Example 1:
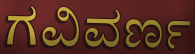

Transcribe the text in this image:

ಗವಿವರ್ಣ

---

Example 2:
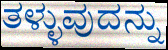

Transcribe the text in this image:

ತಳ್ಳುವುದನ್ನು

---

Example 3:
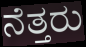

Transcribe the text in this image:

ನೆತ್ತರು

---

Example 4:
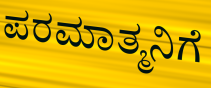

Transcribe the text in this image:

ಪರಮಾತ್ಮನಿಗೆ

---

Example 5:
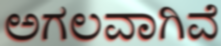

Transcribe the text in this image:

ಅಗಲವಾಗಿವೆ